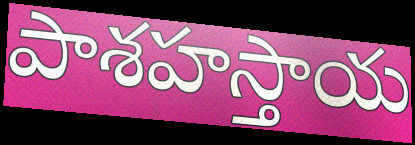
పాశహస్తాయ